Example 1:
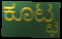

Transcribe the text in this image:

ಕೂಟ್ಟ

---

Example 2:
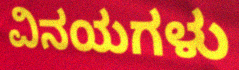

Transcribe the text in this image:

ವಿನಯಗಳು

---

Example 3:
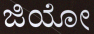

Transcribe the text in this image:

ಜಿಯೋ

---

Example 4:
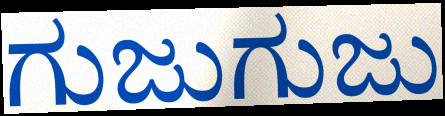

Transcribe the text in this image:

ಗುಜುಗುಜು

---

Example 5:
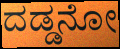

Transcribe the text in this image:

ದಡ್ಡನೋ